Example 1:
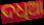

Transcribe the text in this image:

ଦଧିଆ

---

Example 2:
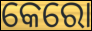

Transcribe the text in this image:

କେରୋ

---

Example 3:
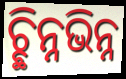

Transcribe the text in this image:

ଚ୍ଛିନ୍ନଭିନ୍ନ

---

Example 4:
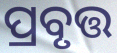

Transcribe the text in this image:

ପ୍ରବୃତ୍ତ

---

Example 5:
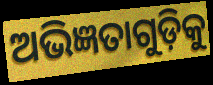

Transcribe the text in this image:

ଅଭିଜ୍ଞତାଗୁଡ଼ିକୁ